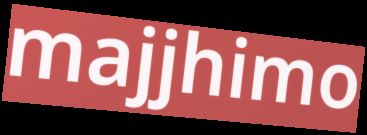
majjhimo